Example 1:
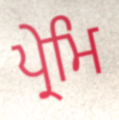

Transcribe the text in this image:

ਪ੍ਰੇਮਿ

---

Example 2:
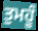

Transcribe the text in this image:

ਤੁਮਹੂੰ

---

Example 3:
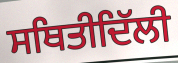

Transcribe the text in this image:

ਸਥਿਤੀਦਿੱਲੀ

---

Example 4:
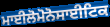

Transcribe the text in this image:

ਮਾਈਲੋਮੋਨੋਸਾਈਟਿਕ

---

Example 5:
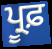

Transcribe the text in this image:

ਪ੍ਰੂਫ਼